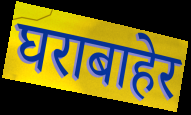
घराबाहेर